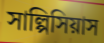
সাল্পিসিয়াস